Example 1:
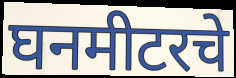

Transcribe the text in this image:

घनमीटरचे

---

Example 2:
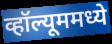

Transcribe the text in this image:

व्हॉल्यूममध्ये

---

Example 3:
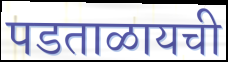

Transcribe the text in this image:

पडताळायची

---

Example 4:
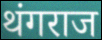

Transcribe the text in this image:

थंगराज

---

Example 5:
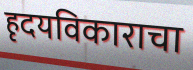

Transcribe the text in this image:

हृदयविकाराचा